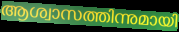
ആശ്വാസത്തിന്നുമായി